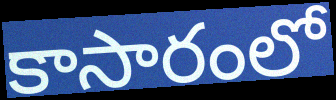
కాసారంలో